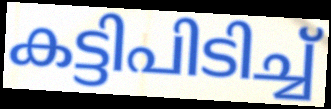
കട്ടിപിടിച്ച്